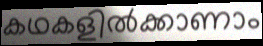
കഥകളിൽക്കാണാം